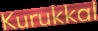
Kurukkal